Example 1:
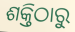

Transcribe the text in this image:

ଶକ୍ତିଠାରୁ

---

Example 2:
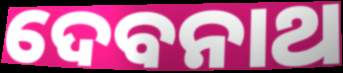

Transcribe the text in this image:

ଦେବନାଥ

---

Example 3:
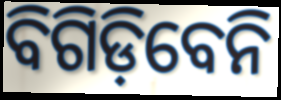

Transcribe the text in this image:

ବିଗିଡ଼ିବେନି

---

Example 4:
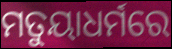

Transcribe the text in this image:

ମତୁୟାଧର୍ମରେ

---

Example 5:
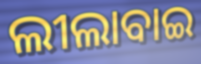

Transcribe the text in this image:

ଲୀଲାବାଇ